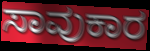
ಸಾವುಕಾರ